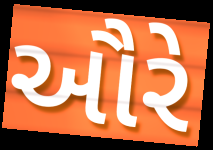
ઔરે